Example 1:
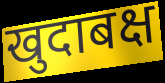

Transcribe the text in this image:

खुदाबक्ष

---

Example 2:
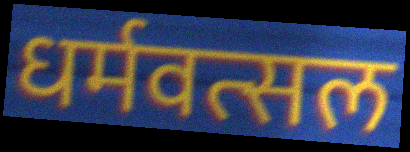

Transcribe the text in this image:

धर्मवत्सल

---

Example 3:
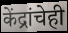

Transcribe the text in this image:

केंद्रांचेही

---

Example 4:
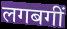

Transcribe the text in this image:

लगबगीं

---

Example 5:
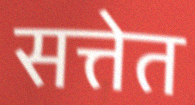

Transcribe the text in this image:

सत्तेत